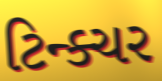
ટિન્ક્ચર